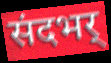
संदभर्